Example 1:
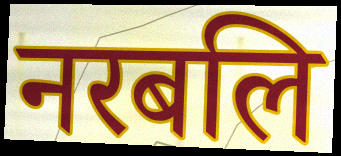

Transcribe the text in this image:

नरबलि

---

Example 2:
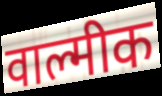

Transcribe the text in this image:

वाल्मीक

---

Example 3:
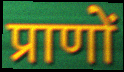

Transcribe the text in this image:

प्राणों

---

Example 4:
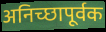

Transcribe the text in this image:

अनिच्छापूर्वक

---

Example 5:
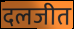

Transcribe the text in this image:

दलजीत